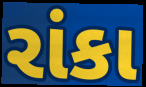
રાંકા